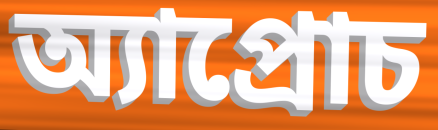
অ্যাপ্রোচ